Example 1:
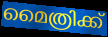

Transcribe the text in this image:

മൈത്രിക്ക്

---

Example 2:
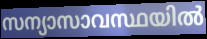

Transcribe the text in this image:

സന്യാസാവസ്ഥയിൽ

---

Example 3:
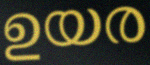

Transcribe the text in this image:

ഉയര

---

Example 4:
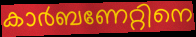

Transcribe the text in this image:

കാർബണേറ്റിനെ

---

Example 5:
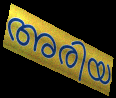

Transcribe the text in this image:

അരിയ